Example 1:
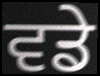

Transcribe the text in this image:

ਵਡੇ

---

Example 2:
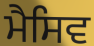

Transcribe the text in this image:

ਮੈਸਿਵ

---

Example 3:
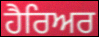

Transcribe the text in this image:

ਹੈਰਿਅਰ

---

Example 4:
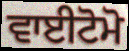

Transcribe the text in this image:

ਵਾਈਟੋਮੋ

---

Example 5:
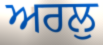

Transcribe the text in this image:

ਅਰਲੁ